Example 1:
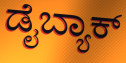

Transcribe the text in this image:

ಡೈಬ್ಯಾಕ್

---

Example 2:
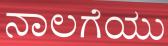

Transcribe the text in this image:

ನಾಲಗೆಯು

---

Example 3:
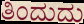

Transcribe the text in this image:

ತಿಂದುದು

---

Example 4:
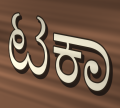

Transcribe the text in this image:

ಟಕಾ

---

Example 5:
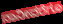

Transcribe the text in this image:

ನಾನೀವರೆಗೂ